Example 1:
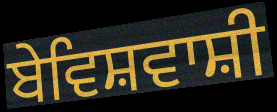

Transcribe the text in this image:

ਬੇਵਿਸ਼ਵਾਸ਼ੀ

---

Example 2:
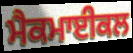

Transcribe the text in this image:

ਮੈਕਮਾਈਕਲ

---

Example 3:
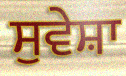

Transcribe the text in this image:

ਸੁਵੇਸ਼ਾ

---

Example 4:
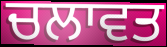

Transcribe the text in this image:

ਚਲਾਵਤ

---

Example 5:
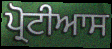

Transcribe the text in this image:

ਪ੍ਰੋਟੀਆਸ